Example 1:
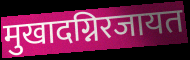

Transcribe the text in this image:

मुखादग्निरजायत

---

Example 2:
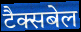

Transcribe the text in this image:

टैक्सबेल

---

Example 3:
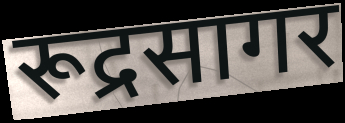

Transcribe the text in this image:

रूद्रसागर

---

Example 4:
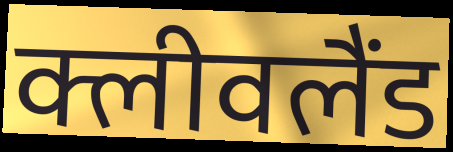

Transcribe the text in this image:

क्लीवलैंड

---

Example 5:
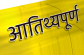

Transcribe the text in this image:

आतिथ्यपूर्ण